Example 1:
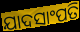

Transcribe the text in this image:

ଯାଦସାଂପତି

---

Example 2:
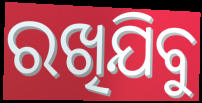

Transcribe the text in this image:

ରଖିଯିବୁ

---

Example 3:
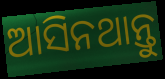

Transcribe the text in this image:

ଆସିନଥାନ୍ତୁ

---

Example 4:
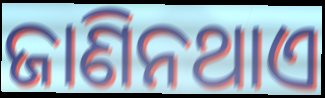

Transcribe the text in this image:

ଜାଣିନଥାଏ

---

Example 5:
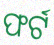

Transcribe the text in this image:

ଫର୍ଟ